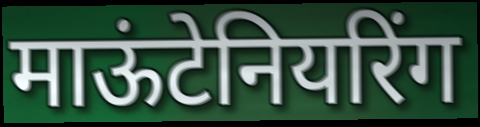
माऊंटेनियरिंग